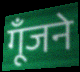
गूँजने